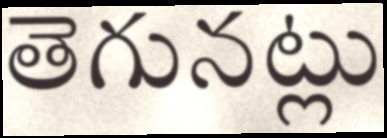
తెగునట్లు